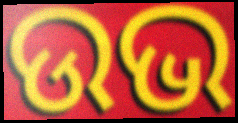
ଉଭ